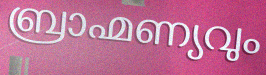
ബ്രാഹ്മണ്യവും